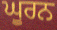
ਘੂਰਨ